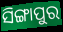
ସିଙ୍ଗାପୁର